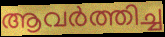
ആവർത്തിച്ച